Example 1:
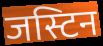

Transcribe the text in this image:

जस्टिन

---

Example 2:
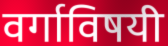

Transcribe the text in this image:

वर्गाविषयी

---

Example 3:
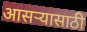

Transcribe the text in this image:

आसऱ्यासाठी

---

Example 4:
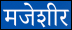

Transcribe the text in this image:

मजेशीर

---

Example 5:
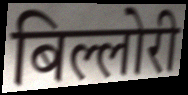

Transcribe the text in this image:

बिल्लोरी